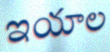
ఇయాల